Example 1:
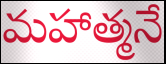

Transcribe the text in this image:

మహాత్మనే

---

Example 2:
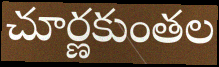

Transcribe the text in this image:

చూర్ణకుంతల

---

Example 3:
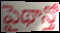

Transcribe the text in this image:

పైథాన్తో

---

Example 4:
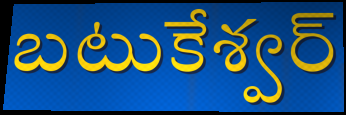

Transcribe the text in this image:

బటుకేశ్వర్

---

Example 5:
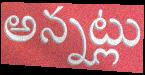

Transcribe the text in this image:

అన్నట్లు